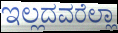
ಇಲ್ಲದವರೆಲ್ಲಾ